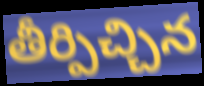
తీర్పిచ్చిన